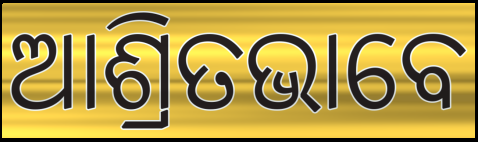
ଆଶ୍ରିତଭାବେ